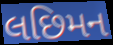
લછિમન